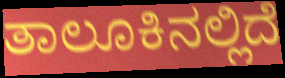
ತಾಲೂಕಿನಲ್ಲಿದೆ